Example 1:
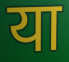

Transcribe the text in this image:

या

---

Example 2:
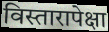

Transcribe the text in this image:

विस्तारापेक्षा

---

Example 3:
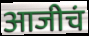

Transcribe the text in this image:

आजीचं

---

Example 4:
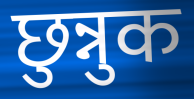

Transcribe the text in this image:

छुन्नुक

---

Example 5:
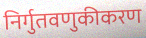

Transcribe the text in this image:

निर्गुतवणुकीकरण